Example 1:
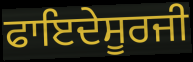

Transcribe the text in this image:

ਫਾਇਦੇਸੂਰਜੀ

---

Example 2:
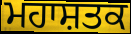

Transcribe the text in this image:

ਮਹਾਸ਼ਤਕ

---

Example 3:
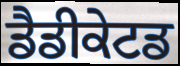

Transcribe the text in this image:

ਡੈਡੀਕੇਟਡ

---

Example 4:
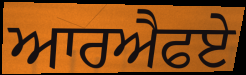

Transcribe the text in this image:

ਆਰਐਫਏ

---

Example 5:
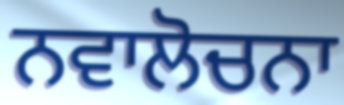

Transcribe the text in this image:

ਨਵਾਲੋਚਨਾ